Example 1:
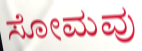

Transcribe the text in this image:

ಸೋಮವು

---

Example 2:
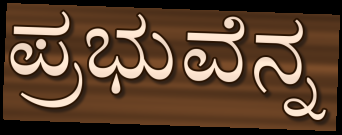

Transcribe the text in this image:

ಪ್ರಭುವೆನ್ನ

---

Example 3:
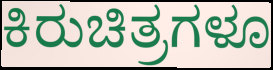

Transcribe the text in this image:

ಕಿರುಚಿತ್ರಗಳೂ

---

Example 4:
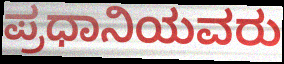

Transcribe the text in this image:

ಪ್ರಧಾನಿಯವರು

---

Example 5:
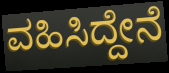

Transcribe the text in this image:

ವಹಿಸಿದ್ದೇನೆ